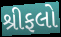
શ્રીફલો